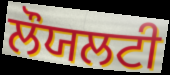
ਲੌਯਲਟੀ